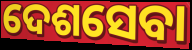
ଦେଶସେବା